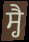
ਸ੍ਹੈ